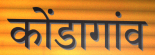
कोंडागांव